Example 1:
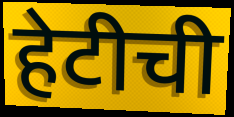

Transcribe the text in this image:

हेटीची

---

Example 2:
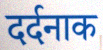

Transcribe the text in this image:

दर्दनाक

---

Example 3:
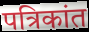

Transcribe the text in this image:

पत्रिकांत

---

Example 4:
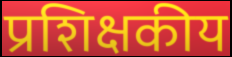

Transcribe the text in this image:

प्रशिक्षकीय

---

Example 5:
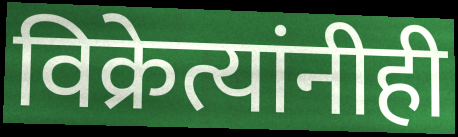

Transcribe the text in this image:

विक्रेत्यांनीही